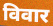
विवार